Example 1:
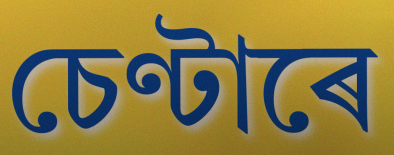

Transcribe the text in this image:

চেণ্টাৰে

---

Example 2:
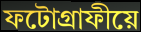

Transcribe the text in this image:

ফটোগ্ৰাফীয়ে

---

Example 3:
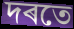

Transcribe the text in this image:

দৰতে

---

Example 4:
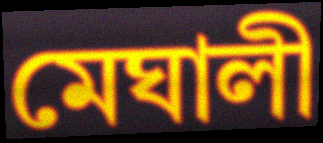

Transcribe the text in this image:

মেঘালী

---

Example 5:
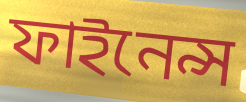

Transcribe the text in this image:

ফাইনেন্স